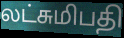
லட்சுமிபதி